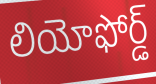
లియోఫోర్డ్